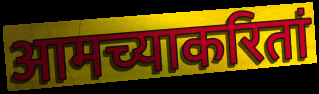
आमच्याकरितां